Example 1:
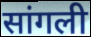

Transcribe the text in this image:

सांगली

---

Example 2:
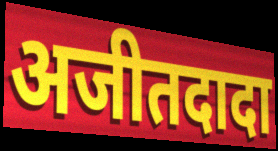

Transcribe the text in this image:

अजीतदादा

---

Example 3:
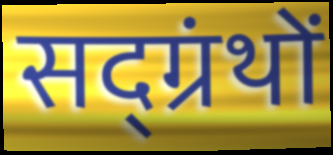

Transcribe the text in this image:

सद्ग्रंथों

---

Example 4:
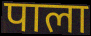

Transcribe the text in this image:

पाला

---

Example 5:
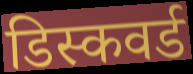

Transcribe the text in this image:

डिस्कवर्ड